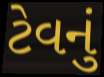
ટેવનું